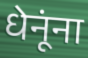
धेनूंना